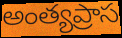
అంత్యప్రాస